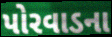
પોરવાડના